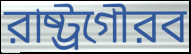
রাষ্ট্রগৌরব